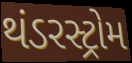
થંડરસ્ટ્રોમ